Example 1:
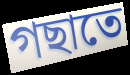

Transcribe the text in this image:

গছাতে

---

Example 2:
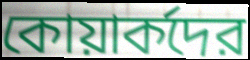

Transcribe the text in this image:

কোয়ার্কদের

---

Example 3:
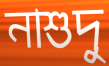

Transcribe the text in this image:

নাশুদু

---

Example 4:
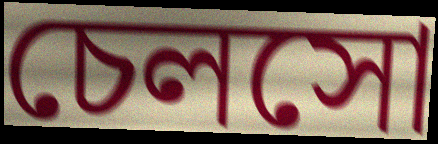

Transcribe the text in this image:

চেলসো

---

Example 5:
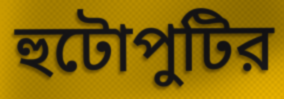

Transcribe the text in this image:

হুটোপুটির